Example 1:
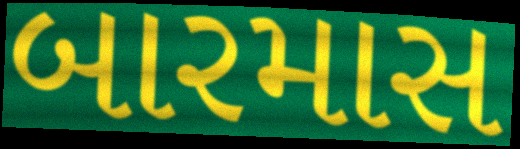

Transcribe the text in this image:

બારમાસ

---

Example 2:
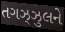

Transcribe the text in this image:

તગઝ્ઝુલને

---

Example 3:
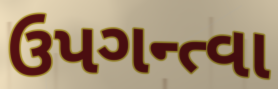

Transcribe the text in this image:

ઉપગન્ત્વા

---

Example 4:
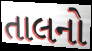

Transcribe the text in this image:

તાલનો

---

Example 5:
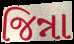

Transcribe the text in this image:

જિન્ના